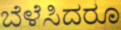
ಬೆಳೆಸಿದರೂ